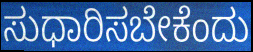
ಸುಧಾರಿಸಬೇಕೆಂದು